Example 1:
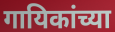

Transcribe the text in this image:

गायिकांच्या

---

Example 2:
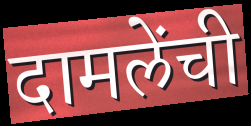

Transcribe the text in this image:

दामलेंची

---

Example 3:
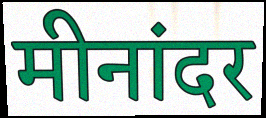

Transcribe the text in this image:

मीनांदर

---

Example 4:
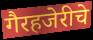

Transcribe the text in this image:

गैरहजेरीचे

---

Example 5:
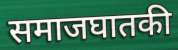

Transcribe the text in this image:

समाजघातकी